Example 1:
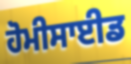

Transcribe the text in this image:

ਹੋਮੀਸਾਈਡ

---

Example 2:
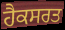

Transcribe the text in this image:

ਹੈਕਸਰਤ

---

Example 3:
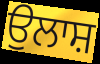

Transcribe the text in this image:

ਉਲਾਸ਼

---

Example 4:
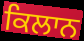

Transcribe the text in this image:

ਕਿਲਾਨ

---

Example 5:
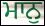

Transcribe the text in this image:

ਮਾਨੁ